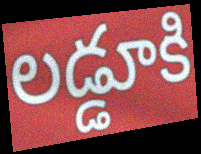
లడ్డూకి